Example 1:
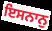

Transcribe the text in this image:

ਇਸਨਾਨੁ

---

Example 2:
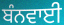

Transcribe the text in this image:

ਬੰਨਵਾਈ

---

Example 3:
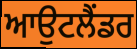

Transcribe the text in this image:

ਆਉਟਲੈਂਡਰ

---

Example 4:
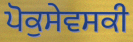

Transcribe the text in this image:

ਪੋਕੁਸੇਵਸਕੀ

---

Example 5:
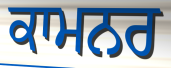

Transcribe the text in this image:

ਕਾਮਨਰ